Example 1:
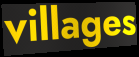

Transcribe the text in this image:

villages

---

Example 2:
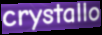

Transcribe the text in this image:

crystallo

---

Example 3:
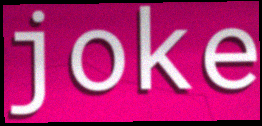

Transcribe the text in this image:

joke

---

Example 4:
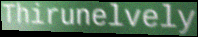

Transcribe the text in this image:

Thirunelvely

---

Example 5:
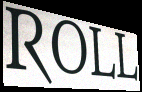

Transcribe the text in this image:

ROLL